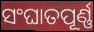
ସଂଘାତପୂର୍ଣ୍ଣ